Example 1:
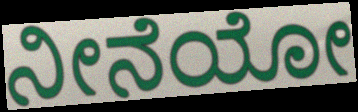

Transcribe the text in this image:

ನೀನೆಯೋ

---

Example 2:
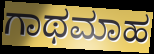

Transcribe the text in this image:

ಗಾಥಮಾಹ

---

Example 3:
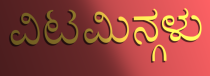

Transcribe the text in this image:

ವಿಟಮಿನ್ಗಳು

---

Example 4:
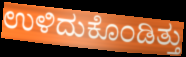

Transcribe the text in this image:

ಉಳಿದುಕೊಂಡಿತ್ತು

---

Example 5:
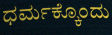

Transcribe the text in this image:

ಧರ್ಮಕ್ಕೊಂದು